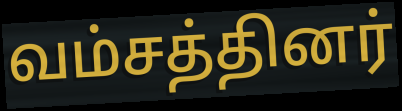
வம்சத்தினர்